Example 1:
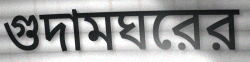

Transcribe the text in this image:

গুদামঘরের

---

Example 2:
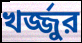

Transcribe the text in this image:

খর্জ্জুর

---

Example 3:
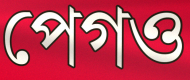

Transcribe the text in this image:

পেগও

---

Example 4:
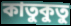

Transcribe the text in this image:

কাতুকুতু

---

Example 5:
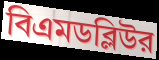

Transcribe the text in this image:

বিএমডব্লিউর